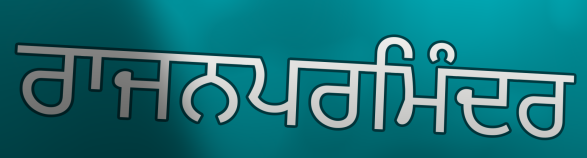
ਰਾਜਨਪਰਮਿੰਦਰ